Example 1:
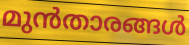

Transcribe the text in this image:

മുൻതാരങ്ങൾ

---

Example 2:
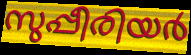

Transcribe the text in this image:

സുപ്പീരിയർ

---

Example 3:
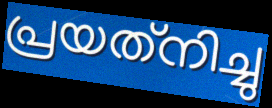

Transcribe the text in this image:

പ്രയത്‌നിച്ചു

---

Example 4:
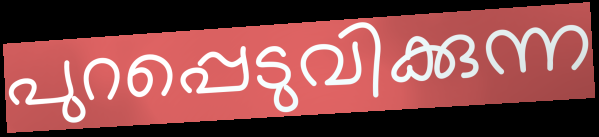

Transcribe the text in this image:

പുറപ്പെടുവിക്കുന്ന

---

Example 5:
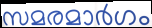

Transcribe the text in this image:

സമരമാർഗം